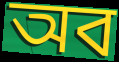
অব